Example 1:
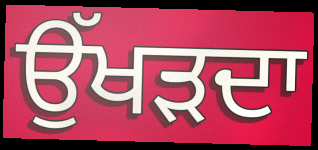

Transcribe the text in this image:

ਉੱਖੜਦਾ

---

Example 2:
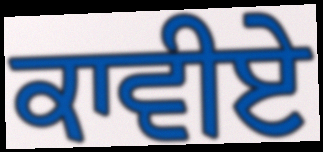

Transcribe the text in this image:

ਕਾਵੀਏ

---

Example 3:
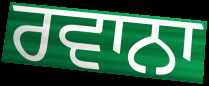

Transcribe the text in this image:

ਰਵਾਨਾ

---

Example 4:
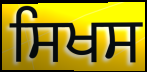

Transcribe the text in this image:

ਸਿਖਸ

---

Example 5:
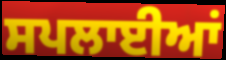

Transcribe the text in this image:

ਸਪਲਾਈਆਂ